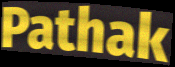
Pathak